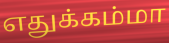
எதுக்கம்மா